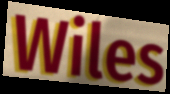
Wiles